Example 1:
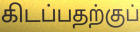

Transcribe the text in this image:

கிடப்பதற்குப்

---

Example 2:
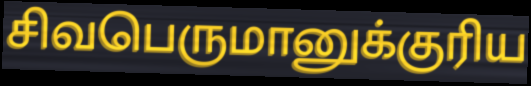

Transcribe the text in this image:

சிவபெருமானுக்குரிய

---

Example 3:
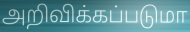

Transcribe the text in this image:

அறிவிக்கப்படுமா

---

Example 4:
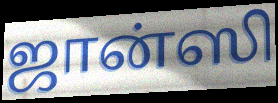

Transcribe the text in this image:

ஜான்ஸி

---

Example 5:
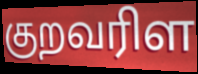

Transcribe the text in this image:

குறவரிள